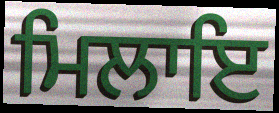
ਮਿਲਾਇ